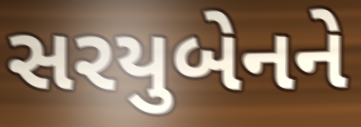
સરયુબેનને